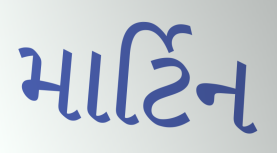
માર્ટિન